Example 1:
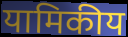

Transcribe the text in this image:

यामिकीय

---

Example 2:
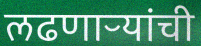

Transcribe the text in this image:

लढणाऱ्यांची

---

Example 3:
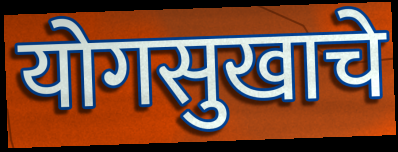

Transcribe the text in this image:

योगसुखाचे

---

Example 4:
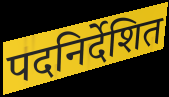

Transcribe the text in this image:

पदनिर्देशित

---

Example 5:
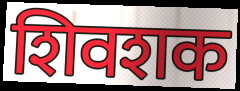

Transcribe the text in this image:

शिवशक